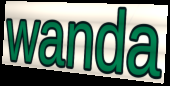
wanda